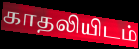
காதலியிடம்